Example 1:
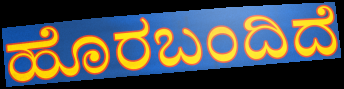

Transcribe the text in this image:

ಹೊರಬಂದಿದೆ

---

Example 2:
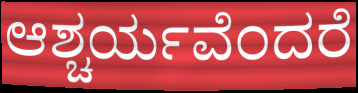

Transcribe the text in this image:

ಆಶ್ಚರ್ಯವೆಂದರೆ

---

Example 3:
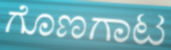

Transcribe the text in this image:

ಗೊಣಗಾಟ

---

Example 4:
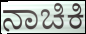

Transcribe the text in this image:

ನಾಚಿಕಿ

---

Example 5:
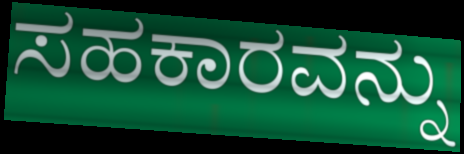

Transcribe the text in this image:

ಸಹಕಾರವನ್ನು